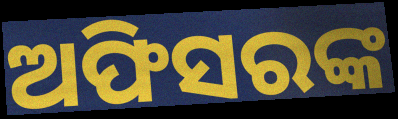
ଅଫିସରଙ୍କ